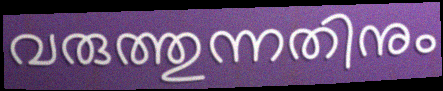
വരുത്തുന്നതിനും